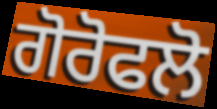
ਗੋਰੋਫਲੋ